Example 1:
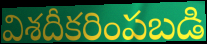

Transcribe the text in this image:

విశదీకరింపబడి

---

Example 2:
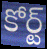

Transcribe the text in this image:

కోర్ట్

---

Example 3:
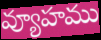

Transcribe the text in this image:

వ్యూహము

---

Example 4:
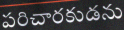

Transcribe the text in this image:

పరిచారకుడను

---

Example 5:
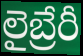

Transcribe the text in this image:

లైబ్రేరీ